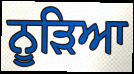
ਨੂੜਿਆ